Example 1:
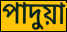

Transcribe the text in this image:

পাদুয়া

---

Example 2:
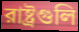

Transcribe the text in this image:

রাষ্ট্রগুলি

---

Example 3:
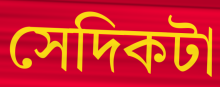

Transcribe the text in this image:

সেদিকটা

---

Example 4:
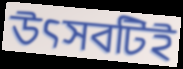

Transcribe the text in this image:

উৎসবটিই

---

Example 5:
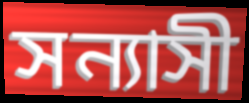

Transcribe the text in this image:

সন্যাসী